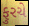
ફુરચે